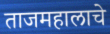
ताजमहालाचे